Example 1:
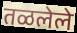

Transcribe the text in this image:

तळलेले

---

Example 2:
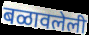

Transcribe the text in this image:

बळावलेली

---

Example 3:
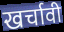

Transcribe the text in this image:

खर्चावी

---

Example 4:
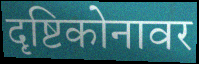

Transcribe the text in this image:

दृष्टिकोनावर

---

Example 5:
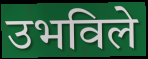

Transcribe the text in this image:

उभविले